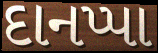
દાનપ્પા